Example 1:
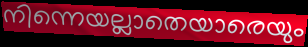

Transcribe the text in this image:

നിന്നെയല്ലാതെയാരെയും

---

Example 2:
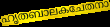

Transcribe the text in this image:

ഹൃതബാലകചേതനാ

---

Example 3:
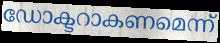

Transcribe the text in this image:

ഡോക്ടറാകണമെന്ന്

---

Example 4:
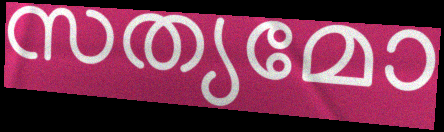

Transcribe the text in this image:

സത്യമോ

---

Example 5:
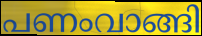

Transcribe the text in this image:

പണംവാങ്ങി